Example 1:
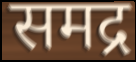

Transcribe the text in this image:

समद्र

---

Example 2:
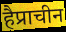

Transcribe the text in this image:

हैप्राचीन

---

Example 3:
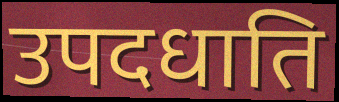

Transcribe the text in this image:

उपदधाति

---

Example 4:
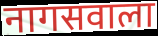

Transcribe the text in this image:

नागसवाला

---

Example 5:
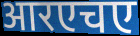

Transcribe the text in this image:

आरएचए